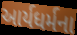
આર્યધર્મના